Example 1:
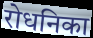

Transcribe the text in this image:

रोधनिका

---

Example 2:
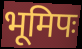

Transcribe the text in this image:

भूमिपः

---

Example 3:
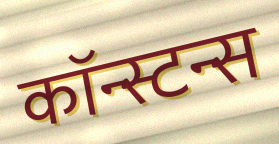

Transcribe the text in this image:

कॉन्स्टन्स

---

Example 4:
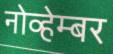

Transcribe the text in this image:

नोव्हेम्बर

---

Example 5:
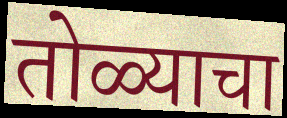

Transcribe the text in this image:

तोळ्याचा